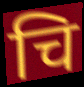
चि